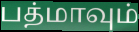
பத்மாவும்